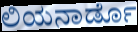
ಲಿಯನಾರ್ಡೊ